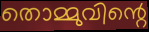
തൊമ്മുവിന്റെ